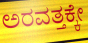
ಅರವತ್ತಕ್ಕೇ